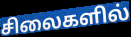
சிலைகளில்